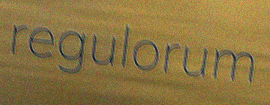
regulorum